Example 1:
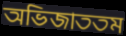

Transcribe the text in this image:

অভিজাততম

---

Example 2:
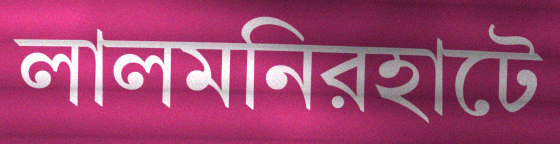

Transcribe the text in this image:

লালমনিরহাটে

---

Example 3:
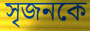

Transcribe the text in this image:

সৃজনকে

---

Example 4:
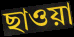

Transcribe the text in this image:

ছাওয়া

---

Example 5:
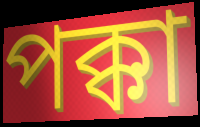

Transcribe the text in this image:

পক্কা